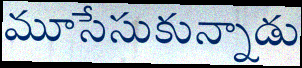
మూసేసుకున్నాడు